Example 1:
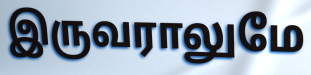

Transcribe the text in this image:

இருவராலுமே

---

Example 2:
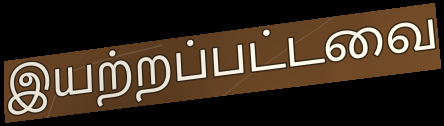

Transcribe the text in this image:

இயற்றப்பட்டவை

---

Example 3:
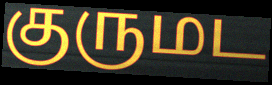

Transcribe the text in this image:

குருமட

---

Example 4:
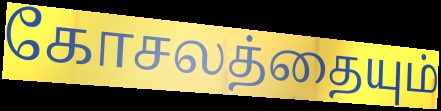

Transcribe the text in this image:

கோசலத்தையும்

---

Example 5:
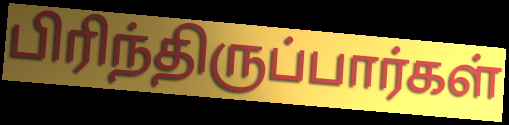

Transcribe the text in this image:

பிரிந்திருப்பார்கள்